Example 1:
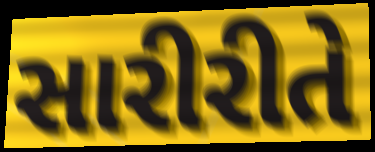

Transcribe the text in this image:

સારીરીતે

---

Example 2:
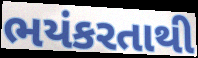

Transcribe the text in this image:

ભયંકરતાથી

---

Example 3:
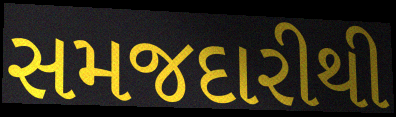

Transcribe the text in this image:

સમજદારીથી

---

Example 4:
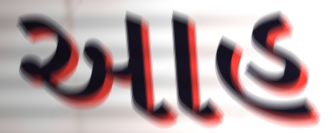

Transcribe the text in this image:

આહ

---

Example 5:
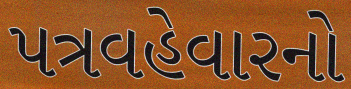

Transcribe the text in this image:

પત્રવહેવારનો